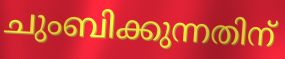
ചുംബിക്കുന്നതിന്